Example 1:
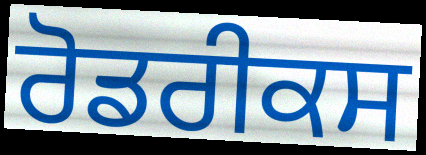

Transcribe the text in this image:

ਰੋਡਰੀਕਸ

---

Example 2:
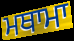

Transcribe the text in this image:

ਮਥਾਮਾ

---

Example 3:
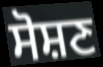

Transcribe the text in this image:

ਸੋਸ਼ਣ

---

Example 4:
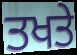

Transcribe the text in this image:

ਤਖਤੇ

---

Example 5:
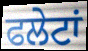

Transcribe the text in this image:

ਫਲੇਟਾਂ